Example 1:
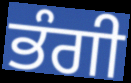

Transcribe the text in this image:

ਭੰਗੀ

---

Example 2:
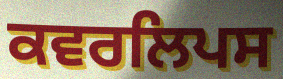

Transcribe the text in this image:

ਕਵਰਲਿਪਸ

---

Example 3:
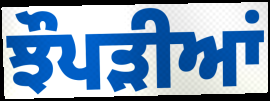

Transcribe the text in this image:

ਝੌਪੜੀਆਂ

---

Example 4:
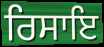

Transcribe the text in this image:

ਰਿਸਾਇ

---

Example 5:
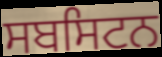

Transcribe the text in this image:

ਸਬਸਿਟਨ